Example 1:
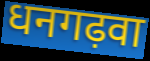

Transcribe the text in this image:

धनगढ़वा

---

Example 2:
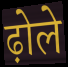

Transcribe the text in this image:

ढ़ोले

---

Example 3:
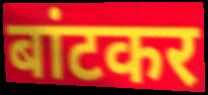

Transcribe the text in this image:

बांटकर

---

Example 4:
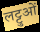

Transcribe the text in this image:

लट्टुओं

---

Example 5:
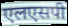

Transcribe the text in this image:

एलएसपी